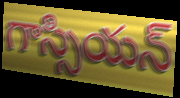
గాస్సియన్